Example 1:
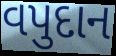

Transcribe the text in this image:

વપુદાન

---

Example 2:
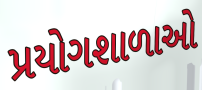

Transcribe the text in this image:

પ્રયોગશાળાઓ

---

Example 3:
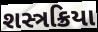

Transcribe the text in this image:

શસ્ત્રક્રિયા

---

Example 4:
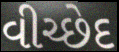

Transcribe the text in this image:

વીચ્છેદ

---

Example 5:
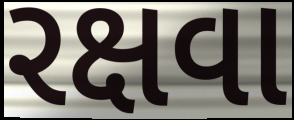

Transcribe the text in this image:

રક્ષવા